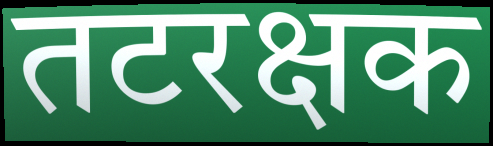
तटरक्षक